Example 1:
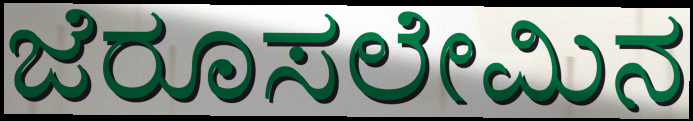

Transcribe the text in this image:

ಜೆರೂಸಲೇಮಿನ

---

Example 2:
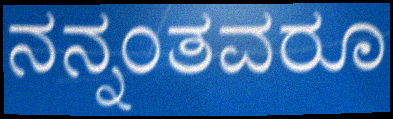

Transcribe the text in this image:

ನನ್ನಂತವರೂ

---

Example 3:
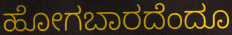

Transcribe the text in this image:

ಹೋಗಬಾರದೆಂದೂ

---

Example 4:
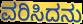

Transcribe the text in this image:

ವರಿಸಿದನು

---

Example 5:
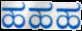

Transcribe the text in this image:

ಹಹಹ